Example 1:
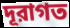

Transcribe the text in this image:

দূরাগত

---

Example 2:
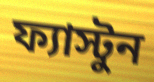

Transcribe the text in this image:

ফ্যাস্টুন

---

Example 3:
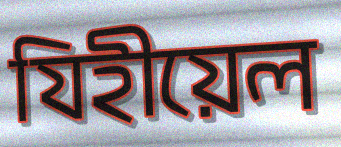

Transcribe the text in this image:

যিহীয়েল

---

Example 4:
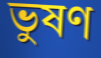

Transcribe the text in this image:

ভুষণ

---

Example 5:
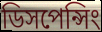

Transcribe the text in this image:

ডিসপেন্সিং